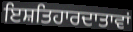
ਇਸ਼ਤਿਹਾਰਦਾਤਾਵਾਂ